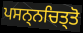
ਪਸਨ੍ਨਚਿਤ੍ਤੋ